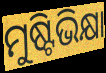
ମୁଷ୍ଟିଭିକ୍ଷା